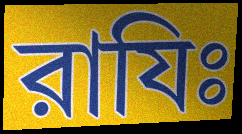
রাযিঃ